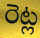
రెట్ల